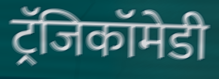
ट्रॅजिकॉमेडी